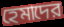
হেমাদের